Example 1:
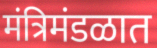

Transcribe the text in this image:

मंत्रिमंडळात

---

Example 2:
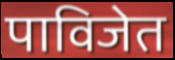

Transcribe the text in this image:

पाविजेत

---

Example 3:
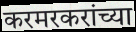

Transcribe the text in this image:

करमरकरांच्या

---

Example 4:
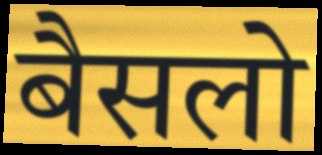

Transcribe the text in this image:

बैसलो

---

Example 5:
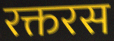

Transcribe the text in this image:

रक्तरस